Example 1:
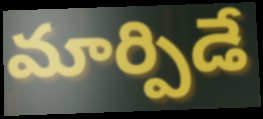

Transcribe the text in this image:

మార్పిడే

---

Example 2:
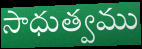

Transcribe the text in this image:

సాధుత్వము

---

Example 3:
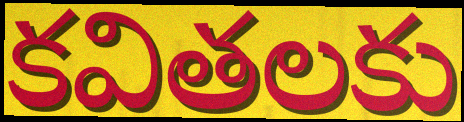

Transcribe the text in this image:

కవితలకు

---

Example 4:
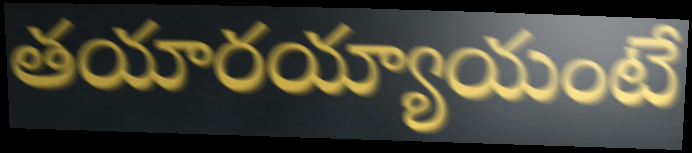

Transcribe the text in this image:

తయారయ్యాయంటే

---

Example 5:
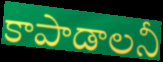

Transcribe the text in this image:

కాపాడాలనీ